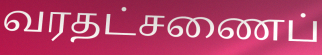
வரதட்சணைப்